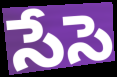
సేసె